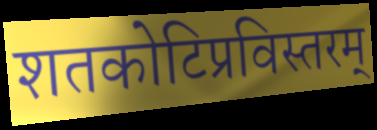
शतकोटिप्रविस्तरम्